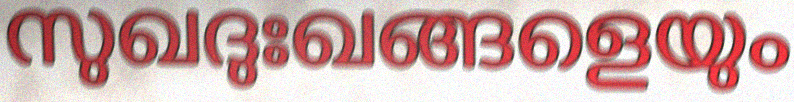
സുഖദുഃഖങ്ങളെയും